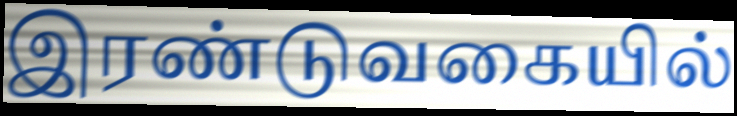
இரண்டுவகையில்